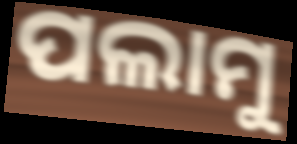
ପଲାମୁ